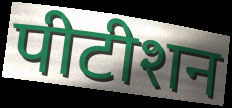
पीटीशन